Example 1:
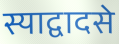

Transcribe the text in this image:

स्याद्वादसे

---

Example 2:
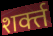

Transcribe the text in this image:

शर्क्त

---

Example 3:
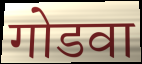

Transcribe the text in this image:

गोडवा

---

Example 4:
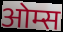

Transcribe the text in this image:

ओम्स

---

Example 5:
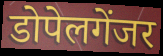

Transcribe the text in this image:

डोपेलगेंजर